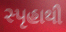
સ્પૃહાથી